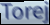
Torej